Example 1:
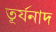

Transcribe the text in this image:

তূর্যনাদ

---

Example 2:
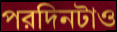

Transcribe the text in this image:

পরদিনটাও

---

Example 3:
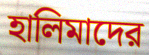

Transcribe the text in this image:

হালিমাদের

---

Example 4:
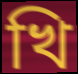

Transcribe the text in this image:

খি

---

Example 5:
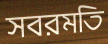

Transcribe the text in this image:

সবরমতি